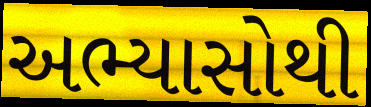
અભ્યાસોથી